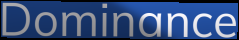
Dominance